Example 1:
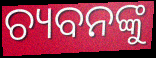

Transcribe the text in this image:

ଚ୍ୟବନଙ୍କୁ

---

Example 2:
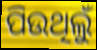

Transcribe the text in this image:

ପିଉଥିଲୁଁ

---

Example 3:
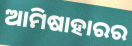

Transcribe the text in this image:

ଆମିଷାହାରର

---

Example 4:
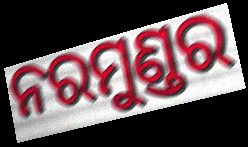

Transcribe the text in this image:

ନରମୁଣ୍ଡର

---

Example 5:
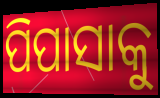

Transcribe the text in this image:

ପିପାସାକୁ